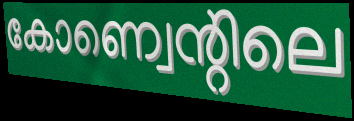
കോണ്വെന്റിലെ